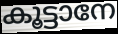
കൂട്ടാനേ